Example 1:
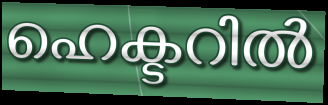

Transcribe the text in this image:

ഹെക്ടറിൽ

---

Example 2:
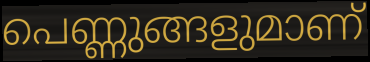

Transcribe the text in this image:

പെണ്ണുങ്ങളുമാണ്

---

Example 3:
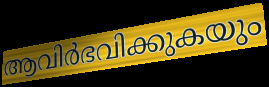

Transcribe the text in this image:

ആവിർഭവിക്കുകയും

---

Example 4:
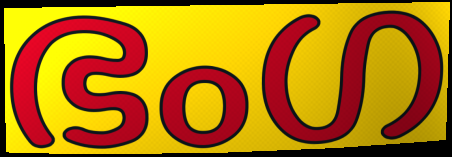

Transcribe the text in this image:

ഭംഗ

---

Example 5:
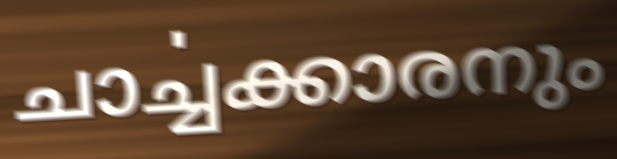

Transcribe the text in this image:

ചാൎച്ചക്കാരനും